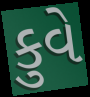
કુવે